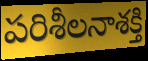
పరిశీలనాశక్తి